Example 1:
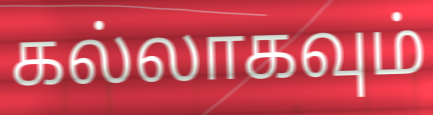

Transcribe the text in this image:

கல்லாகவும்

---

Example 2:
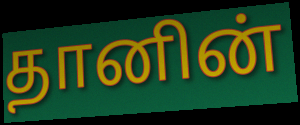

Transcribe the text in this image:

தானின்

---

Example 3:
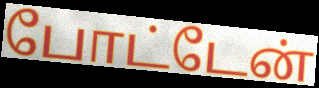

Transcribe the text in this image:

போட்டேன்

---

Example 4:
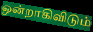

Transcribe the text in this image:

ஒன்றாகிவிடும்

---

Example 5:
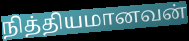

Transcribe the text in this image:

நித்தியமானவன்